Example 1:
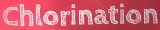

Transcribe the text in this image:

Chlorination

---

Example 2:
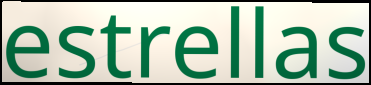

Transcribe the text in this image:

estrellas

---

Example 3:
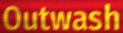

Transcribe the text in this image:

Outwash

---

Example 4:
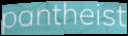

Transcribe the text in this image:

pantheist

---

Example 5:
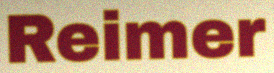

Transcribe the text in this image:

Reimer